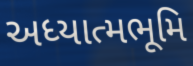
અધ્યાત્મભૂમિ